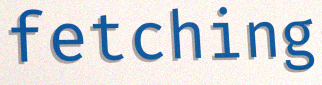
fetching